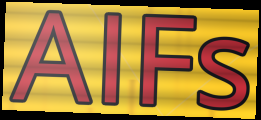
AIFs